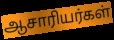
ஆசாரியர்கள்